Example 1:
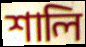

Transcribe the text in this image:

শালি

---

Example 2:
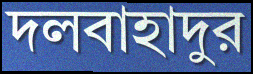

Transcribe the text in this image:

দলবাহাদুর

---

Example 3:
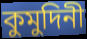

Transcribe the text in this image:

কুমুদিনী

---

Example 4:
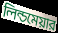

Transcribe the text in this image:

লিন্ডমেয়ার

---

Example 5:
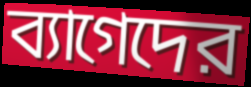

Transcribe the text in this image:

ব্যাগেদের